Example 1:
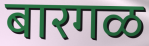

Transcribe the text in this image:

बारगळ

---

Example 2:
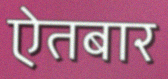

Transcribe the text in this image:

ऐतबार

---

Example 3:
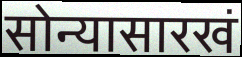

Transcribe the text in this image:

सोन्यासारखं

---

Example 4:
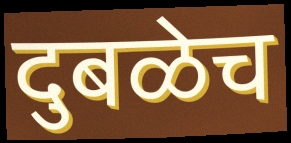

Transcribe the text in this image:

दुबळेच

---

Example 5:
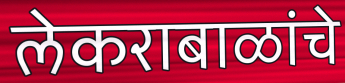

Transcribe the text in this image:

लेकराबाळांचे